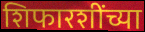
शिफारशींच्या